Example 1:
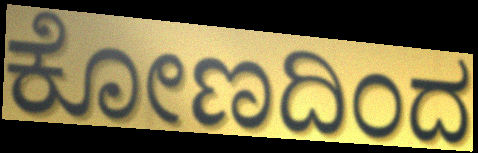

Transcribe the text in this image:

ಕೋಣದಿಂದ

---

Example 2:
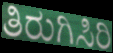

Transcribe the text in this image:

ತಿರುಗಿಸಿರಿ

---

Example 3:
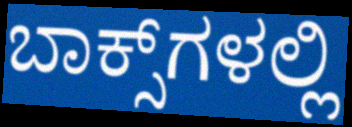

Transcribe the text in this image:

ಬಾಕ್ಸ್‌ಗಳಲ್ಲಿ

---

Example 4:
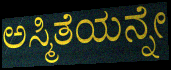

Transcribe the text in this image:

ಅಸ್ಮಿತೆಯನ್ನೇ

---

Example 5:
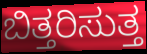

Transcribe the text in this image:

ಬಿತ್ತರಿಸುತ್ತ